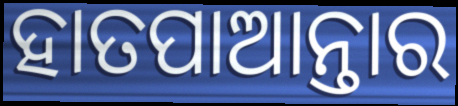
ହାତପାଆନ୍ତାର